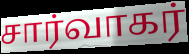
சார்வாகர்